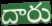
దారు